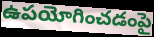
ఉపయోగించడంపై